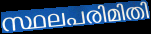
സ്ഥലപരിമിതി